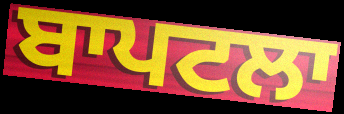
ਬਾਪਟਲਾ